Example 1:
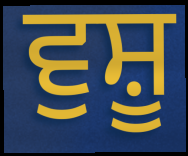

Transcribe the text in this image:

ਵੁਸ਼ੂ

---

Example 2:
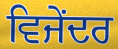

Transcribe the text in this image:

ਵਿਜੇਂਦਰ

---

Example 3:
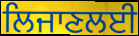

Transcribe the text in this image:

ਲਿਜਾਣਲਈ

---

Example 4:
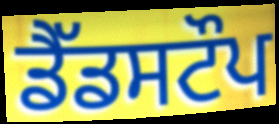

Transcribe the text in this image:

ਡੈੱਡਸਟੌਪ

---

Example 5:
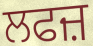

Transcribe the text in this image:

ਲਫਜ਼